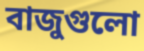
বাজুগুলো